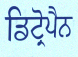
ਡਿਟ੍ਰੋਪੈਨ